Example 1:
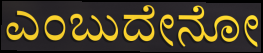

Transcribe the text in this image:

ಎಂಬುದೇನೋ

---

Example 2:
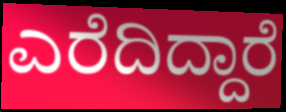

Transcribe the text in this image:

ಎರೆದಿದ್ದಾರೆ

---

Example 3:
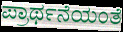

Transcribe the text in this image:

ಪ್ರಾರ್ಥನೆಯಂತೆ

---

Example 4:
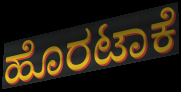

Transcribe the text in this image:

ಹೊರಟಾಕೆ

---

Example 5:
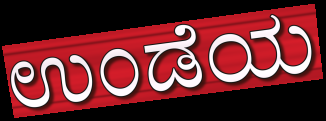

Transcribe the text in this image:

ಉಂಡೆಯ